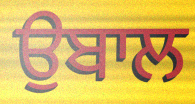
ਉਬਾਲ